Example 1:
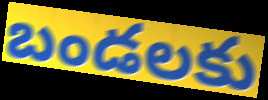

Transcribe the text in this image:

బండలకు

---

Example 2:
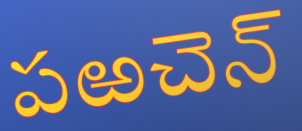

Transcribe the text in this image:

పఱచెన్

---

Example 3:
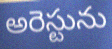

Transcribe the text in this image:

అరెస్టును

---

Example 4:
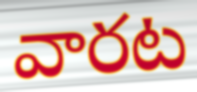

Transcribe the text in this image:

వారట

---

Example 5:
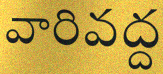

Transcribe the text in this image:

వారివద్ద